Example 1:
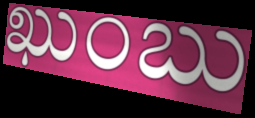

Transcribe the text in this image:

ఖుంబు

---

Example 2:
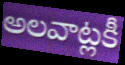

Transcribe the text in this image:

అలవాట్లకీ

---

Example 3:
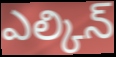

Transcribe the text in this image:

ఎల్కిన్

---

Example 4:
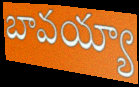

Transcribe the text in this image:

బావయ్యా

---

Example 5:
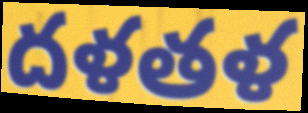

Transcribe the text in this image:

దళతళ